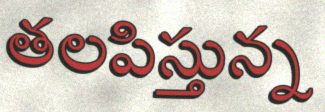
తలపిస్తున్న